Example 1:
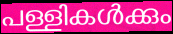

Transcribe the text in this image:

പള്ളികൾക്കും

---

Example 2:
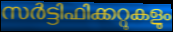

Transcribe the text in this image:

സർട്ടിഫിക്കറ്റുകളും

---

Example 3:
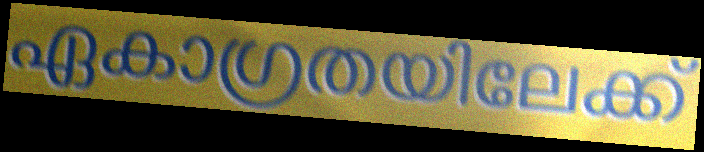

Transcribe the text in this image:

ഏകാഗ്രതയിലേക്ക്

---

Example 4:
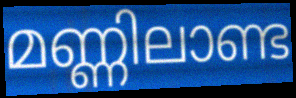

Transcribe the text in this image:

മണ്ണിലാണ്ട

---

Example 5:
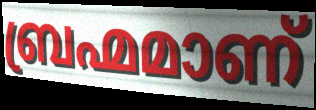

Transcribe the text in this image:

ബ്രഹ്മമാണ്